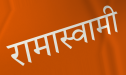
रामास्वामी